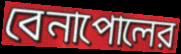
বেনাপোলের